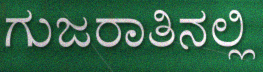
ಗುಜರಾತಿನಲ್ಲಿ